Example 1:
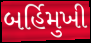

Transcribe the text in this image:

બર્હિમુખી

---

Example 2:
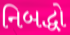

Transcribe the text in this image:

નિબદ્ધો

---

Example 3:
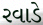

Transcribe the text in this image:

રવાડે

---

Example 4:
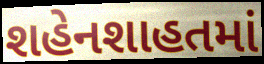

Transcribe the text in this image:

શહેનશાહતમાં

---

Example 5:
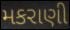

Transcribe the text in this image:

મકરાણી